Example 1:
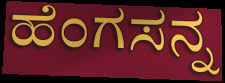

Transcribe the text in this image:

ಹೆಂಗಸನ್ನ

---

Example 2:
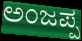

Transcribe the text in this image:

ಅಂಜಪ್ಪ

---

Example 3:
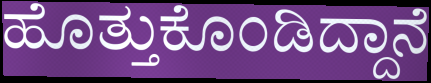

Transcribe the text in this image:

ಹೊತ್ತುಕೊಂಡಿದ್ದಾನೆ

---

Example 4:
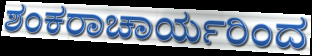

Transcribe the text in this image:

ಶಂಕರಾಚಾರ್ಯರಿಂದ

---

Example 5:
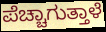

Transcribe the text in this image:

ಪೆಚ್ಚಾಗುತ್ತಾಳೆ